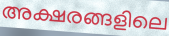
അക്ഷരങ്ങളിലെ